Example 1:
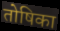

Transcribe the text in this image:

तोषिका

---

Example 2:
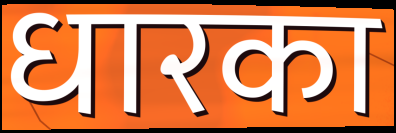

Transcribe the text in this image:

धारका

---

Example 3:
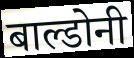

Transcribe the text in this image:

बाल्डोनी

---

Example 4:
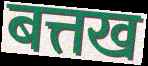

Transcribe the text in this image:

बत्तख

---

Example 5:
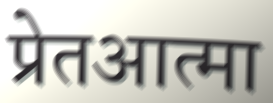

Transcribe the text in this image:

प्रेतआत्मा